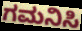
ಗಮನಿಸಿ